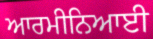
ਆਰਮੀਨਿਆਈ